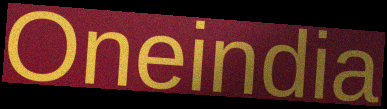
Oneindia